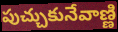
పుచ్చుకునేవాణ్ణి